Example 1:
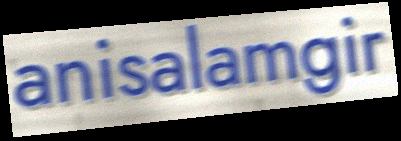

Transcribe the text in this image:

anisalamgir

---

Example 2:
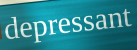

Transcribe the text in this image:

depressant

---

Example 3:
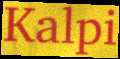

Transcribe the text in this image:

Kalpi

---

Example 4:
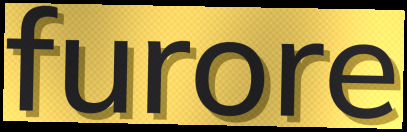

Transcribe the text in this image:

furore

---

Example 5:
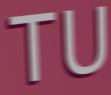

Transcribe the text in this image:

TU